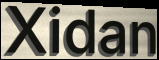
Xidan